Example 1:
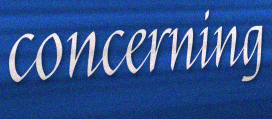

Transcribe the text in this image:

concerning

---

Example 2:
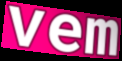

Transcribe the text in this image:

vem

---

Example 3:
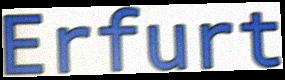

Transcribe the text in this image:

Erfurt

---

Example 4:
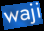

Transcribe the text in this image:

waji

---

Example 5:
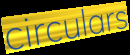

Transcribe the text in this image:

circulars